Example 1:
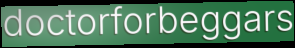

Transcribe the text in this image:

doctorforbeggars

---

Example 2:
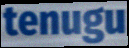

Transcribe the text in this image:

tenugu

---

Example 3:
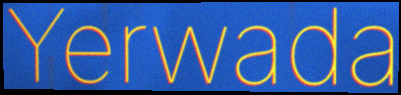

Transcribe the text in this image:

Yerwada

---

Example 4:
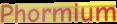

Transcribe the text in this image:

Phormium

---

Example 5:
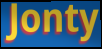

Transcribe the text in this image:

Jonty